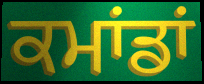
ਕਮਾਂਡਾਂ